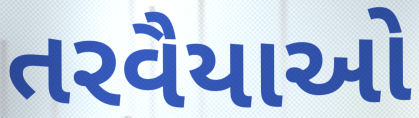
તરવૈયાઓ